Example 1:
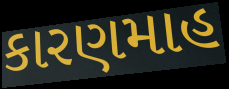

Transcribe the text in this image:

કારણમાહ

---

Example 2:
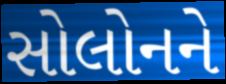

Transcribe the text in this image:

સોલોનને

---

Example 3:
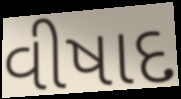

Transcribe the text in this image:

વીષાદ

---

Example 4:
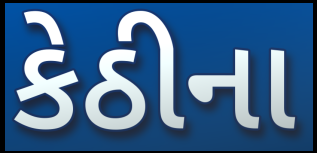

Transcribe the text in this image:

કેઠીના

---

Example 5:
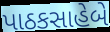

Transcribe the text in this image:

પાઠકસાહેબે